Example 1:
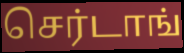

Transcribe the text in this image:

செர்டாங்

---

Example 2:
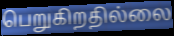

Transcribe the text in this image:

பெறுகிறதில்லை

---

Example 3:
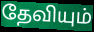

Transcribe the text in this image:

தேவியும்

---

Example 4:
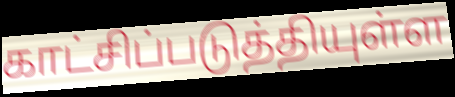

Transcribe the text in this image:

காட்சிப்படுத்தியுள்ள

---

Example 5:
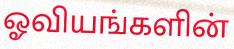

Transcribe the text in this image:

ஓவியங்களின்